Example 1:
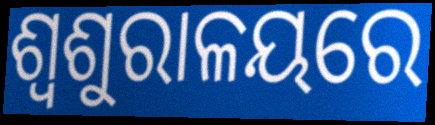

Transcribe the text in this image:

ଶ୍ୱଶୁରାଳୟରେ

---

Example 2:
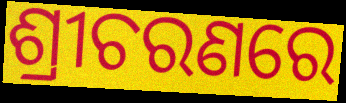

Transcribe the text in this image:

ଶ୍ରୀଚରଣରେ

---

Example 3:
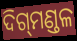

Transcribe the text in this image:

ଦିଗ୍‌ମଣ୍ଡଳ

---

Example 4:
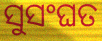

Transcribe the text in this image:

ସୁସଂଘତ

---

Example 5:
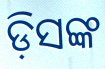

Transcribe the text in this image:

ଡ଼ିସଙ୍କ